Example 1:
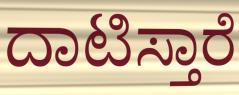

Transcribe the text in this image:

ದಾಟಿಸ್ತಾರೆ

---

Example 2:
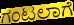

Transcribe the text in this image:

ಗಂಟಲಾಗೆ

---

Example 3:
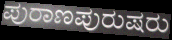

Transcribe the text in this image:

ಪುರಾಣಪುರುಷರು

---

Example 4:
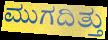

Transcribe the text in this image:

ಮುಗದಿತ್ತು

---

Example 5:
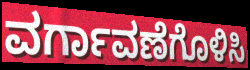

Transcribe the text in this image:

ವರ್ಗಾವಣೆಗೊಳಿಸಿ